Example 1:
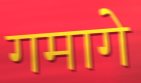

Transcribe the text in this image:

गमागे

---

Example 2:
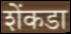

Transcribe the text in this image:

शेंकडा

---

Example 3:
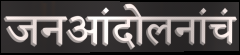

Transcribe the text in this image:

जनआंदोलनांचं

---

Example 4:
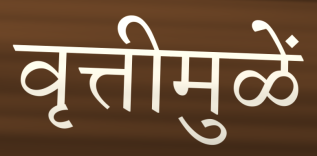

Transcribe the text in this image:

वृत्तीमुळें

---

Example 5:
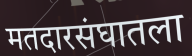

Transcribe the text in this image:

मतदारसंघातला